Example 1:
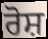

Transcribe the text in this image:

ਰੋਸ਼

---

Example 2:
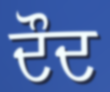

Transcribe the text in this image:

ਦੌਦ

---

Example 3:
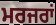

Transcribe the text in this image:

ਮਰਜਰਾਂ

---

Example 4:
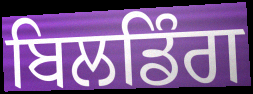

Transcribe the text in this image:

ਬਿਲਡਿੰਗ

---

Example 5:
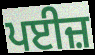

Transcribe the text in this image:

ਪਈਜ਼